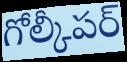
గోల్కీపర్